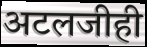
अटलजीही